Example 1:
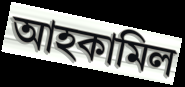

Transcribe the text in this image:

আহকামিল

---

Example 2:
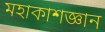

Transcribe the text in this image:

মহাকাশজ্ঞান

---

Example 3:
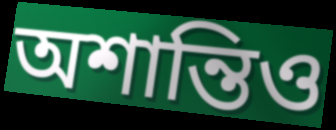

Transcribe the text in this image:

অশান্তিও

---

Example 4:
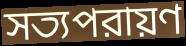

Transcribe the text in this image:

সত্যপরায়ণ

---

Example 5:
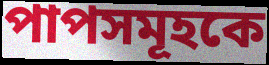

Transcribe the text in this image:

পাপসমূহকে